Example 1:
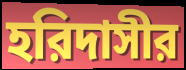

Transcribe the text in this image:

হরিদাসীর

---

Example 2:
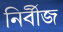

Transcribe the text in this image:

নির্বীজ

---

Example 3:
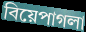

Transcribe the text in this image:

বিয়েপাগলা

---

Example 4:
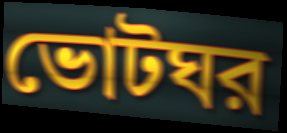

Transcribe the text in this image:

ভোটঘর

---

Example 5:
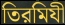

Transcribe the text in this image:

তিরমিযী